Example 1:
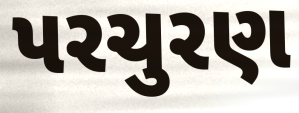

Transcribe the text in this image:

પરચુરણ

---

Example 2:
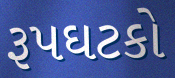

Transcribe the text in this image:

રૂપઘટકો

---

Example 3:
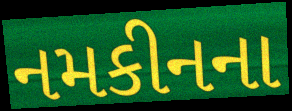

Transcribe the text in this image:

નમકીનના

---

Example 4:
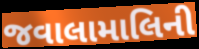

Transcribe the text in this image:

જવાલામાલિની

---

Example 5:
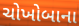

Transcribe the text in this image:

ચોખોબાના